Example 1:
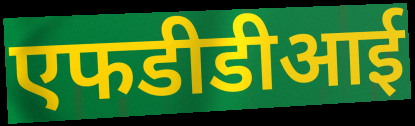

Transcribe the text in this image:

एफडीडीआई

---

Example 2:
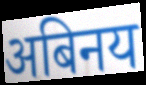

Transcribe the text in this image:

अबिनय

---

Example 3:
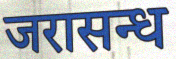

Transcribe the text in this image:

जरासन्ध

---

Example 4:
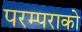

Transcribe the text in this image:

परम्पराको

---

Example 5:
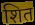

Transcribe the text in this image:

शित